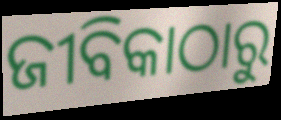
ଜୀବିକାଠାରୁ